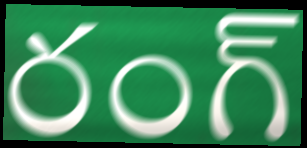
రంగ్